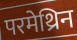
परमेथ्रिन